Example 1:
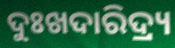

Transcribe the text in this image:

ଦୁଃଖଦାରିଦ୍ର୍ୟ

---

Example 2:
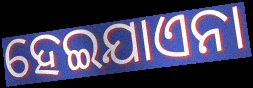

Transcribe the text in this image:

ହେଇଯାଏନା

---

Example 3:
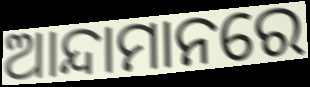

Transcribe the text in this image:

ଆନ୍ଦାମାନରେ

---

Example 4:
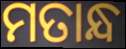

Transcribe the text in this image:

ମତାନ୍ଧ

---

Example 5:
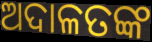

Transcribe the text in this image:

ଅଦାଳତଙ୍କ